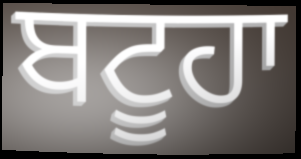
ਬਟੂਹਾ